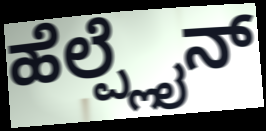
ಹೆಲ್ಪ್ಲೈನ್